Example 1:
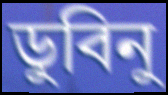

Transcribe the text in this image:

ডুবিনু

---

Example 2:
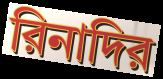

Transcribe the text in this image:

রিনাদির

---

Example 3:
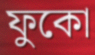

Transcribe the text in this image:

ফুকো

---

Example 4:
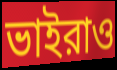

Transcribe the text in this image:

ভাইরাও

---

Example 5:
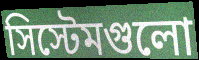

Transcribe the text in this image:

সিস্টেমগুলো